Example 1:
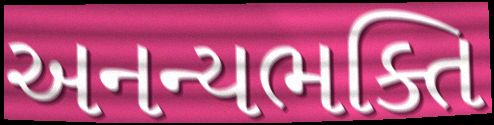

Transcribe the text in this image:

અનન્યભક્તિ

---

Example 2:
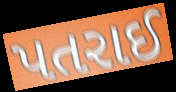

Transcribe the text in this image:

પતરાઈ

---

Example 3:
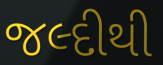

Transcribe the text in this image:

જલ્દીથી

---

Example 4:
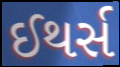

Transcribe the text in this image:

ઈથર્સ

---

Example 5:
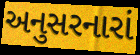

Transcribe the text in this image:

અનુસરનારાં